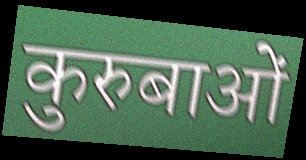
कुरुबाओं